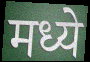
मध्ये